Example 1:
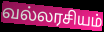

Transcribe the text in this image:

வல்லரசியம்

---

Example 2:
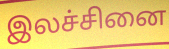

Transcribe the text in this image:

இலச்சினை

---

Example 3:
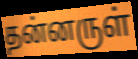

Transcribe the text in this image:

தன்னருள்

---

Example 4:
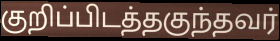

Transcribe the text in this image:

குறிப்பிடத்தகுந்தவர்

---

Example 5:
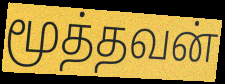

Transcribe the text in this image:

மூத்தவன்